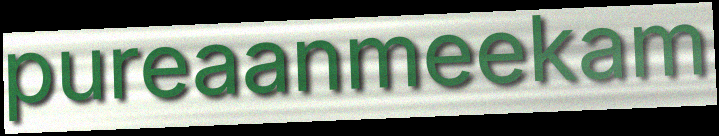
pureaanmeekam